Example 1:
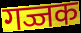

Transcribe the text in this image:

गज्जक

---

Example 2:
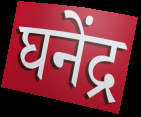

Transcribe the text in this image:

घनेंद्र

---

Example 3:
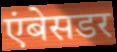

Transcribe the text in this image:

एंबेसडर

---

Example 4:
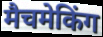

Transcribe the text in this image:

मैचमेकिंग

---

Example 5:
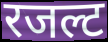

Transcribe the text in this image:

रजल्ट